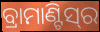
ବ୍ରାମାଣ୍ଟିସ୍‌ର